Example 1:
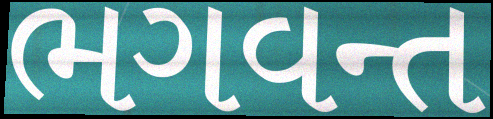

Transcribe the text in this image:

ભગવન્ત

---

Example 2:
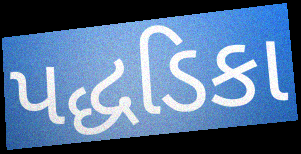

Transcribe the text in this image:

પદ્ધડિકા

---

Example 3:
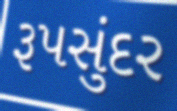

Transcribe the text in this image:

રૂપસુંદર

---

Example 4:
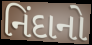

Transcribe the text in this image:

નિંદાનો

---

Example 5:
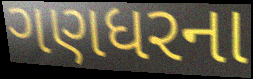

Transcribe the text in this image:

ગણધરના